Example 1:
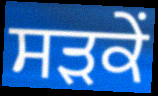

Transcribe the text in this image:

ਸੜਕੇਂ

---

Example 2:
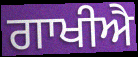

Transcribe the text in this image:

ਗਾਖੀਐ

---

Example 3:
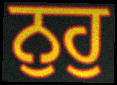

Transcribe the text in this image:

ਨੁਹੁ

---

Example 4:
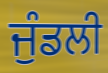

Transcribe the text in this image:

ਜੁੰਡਲੀ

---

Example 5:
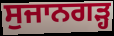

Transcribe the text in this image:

ਸੁਜਾਨਗੜ੍ਹ